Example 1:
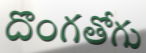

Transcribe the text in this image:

దొంగతోగు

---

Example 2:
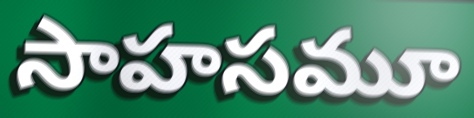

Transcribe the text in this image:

సాహసమూ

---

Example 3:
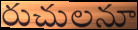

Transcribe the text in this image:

రుచులనూ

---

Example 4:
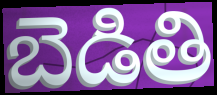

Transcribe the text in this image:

బెడితి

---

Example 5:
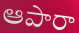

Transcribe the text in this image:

ఆపారా